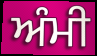
ਅੰਮੀ